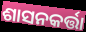
ଶାସନକର୍ତ୍ତା